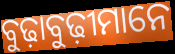
ବୁଢ଼ାବୁଢ଼ୀମାନେ